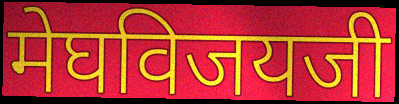
मेघविजयजी